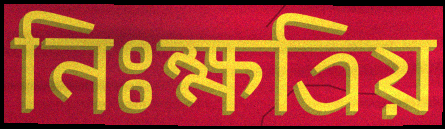
নিঃক্ষত্রিয়